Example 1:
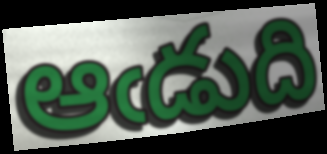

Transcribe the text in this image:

ఆఁడుది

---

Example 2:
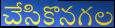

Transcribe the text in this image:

చేసికొనగల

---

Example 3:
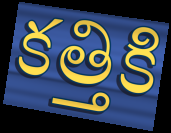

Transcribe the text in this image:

కత్తికి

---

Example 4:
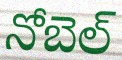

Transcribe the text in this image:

నోబెల్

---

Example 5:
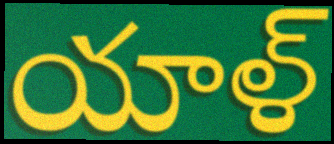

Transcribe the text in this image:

యాళ్